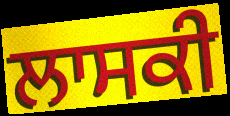
ਲਾਸਕੀ